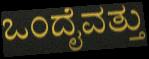
ಒಂದೈವತ್ತು